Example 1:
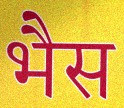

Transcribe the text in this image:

भैस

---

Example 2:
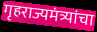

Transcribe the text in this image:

गृहराज्यमंत्र्यांचा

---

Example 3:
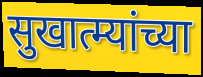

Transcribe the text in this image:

सुखात्म्यांच्या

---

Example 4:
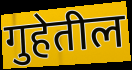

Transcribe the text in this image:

गुहेतील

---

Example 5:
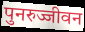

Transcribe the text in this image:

पुनरुज्‍जीवन